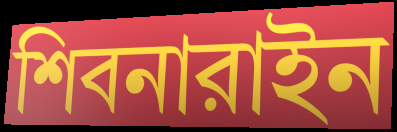
শিবনারাইন